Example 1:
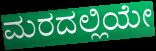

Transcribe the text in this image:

ಮರದಲ್ಲಿಯೇ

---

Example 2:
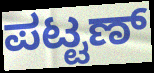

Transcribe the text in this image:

ಪಟ್ಟಣ್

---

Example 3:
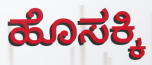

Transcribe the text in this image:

ಹೊಸಕ್ಕಿ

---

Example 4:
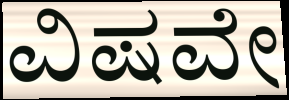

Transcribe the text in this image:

ವಿಷವೇ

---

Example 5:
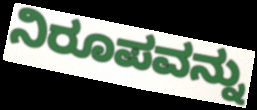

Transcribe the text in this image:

ನಿರೂಪವನ್ನು